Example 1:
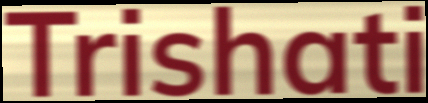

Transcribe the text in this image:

Trishati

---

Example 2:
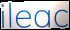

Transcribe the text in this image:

ileac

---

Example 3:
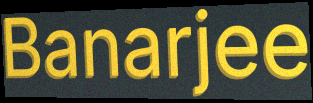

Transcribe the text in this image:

Banarjee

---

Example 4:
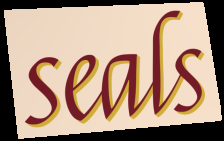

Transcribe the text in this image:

seals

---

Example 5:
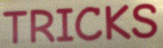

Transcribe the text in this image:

TRICKS